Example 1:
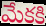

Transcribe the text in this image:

మేకకి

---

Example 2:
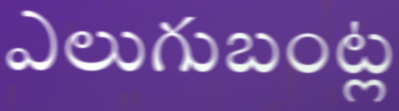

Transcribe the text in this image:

ఎలుగుబంట్ల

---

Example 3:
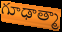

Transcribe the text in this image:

గూఢాత్మా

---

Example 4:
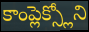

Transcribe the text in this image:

కాంప్లెక్స్లోని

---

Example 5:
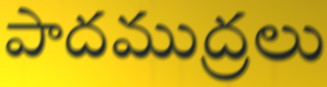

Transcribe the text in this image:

పాదముద్రలు